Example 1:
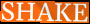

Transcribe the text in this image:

SHAKE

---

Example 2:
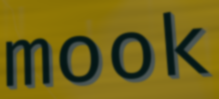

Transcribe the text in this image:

mook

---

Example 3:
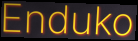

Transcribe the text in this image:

Enduko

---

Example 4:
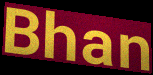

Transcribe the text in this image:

Bhan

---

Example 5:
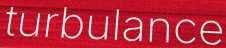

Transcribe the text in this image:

turbulance